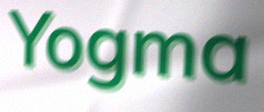
Yogma